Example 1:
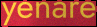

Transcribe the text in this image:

yenare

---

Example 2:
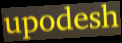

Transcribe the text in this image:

upodesh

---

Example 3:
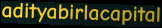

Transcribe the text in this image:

adityabirlacapital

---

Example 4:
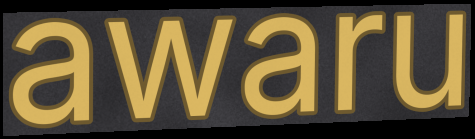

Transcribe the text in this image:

awaru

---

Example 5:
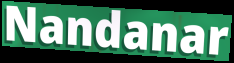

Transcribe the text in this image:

Nandanar